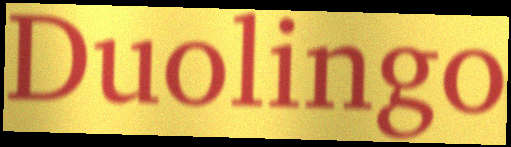
Duolingo